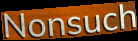
Nonsuch